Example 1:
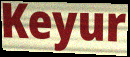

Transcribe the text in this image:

Keyur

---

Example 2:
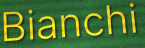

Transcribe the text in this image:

Bianchi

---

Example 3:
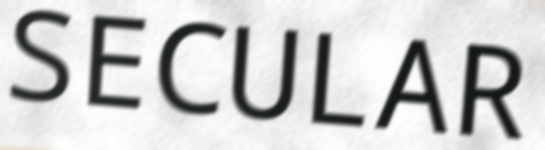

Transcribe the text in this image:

SECULAR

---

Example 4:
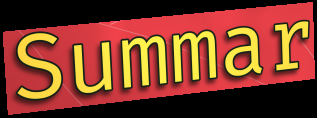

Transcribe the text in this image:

Summar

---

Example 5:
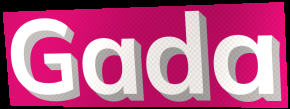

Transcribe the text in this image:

Gada